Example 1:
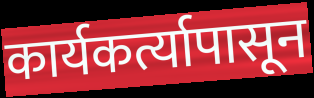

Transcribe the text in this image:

कार्यकर्त्यापासून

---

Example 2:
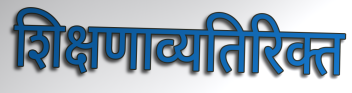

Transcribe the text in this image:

शिक्षणाव्यतिरिक्त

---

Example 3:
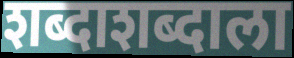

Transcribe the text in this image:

शब्दाशब्दाला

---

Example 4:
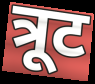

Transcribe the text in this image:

त्रूट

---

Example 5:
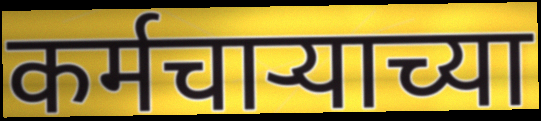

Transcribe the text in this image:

कर्मचाऱ्याच्या